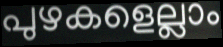
പുഴകളെല്ലാം